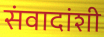
संवादांशी